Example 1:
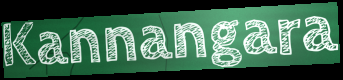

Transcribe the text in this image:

Kannangara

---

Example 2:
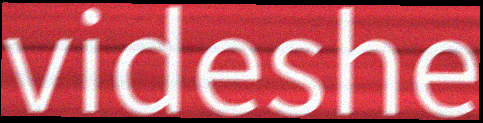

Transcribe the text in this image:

videshe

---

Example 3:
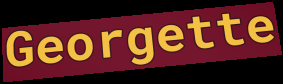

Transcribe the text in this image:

Georgette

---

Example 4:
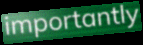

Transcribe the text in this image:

importantly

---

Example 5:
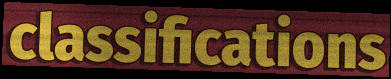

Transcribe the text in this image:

classifications